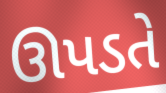
ઊપડતે